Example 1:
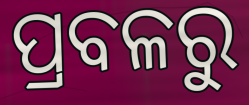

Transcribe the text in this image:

ପ୍ରବଳରୁ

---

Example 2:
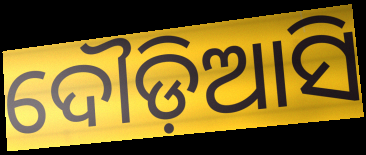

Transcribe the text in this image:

ଦୌଡ଼ିଆସି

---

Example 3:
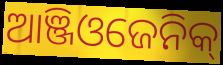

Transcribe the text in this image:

ଆଞ୍ଜିଓଜେନିକ୍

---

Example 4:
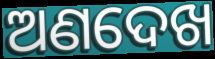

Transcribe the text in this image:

ଅଣଦେଖ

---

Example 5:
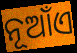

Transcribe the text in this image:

ନୂଆଁଏ